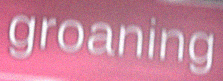
groaning